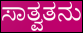
ಸಾತ್ವತನು